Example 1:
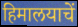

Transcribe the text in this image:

हिमालयाचें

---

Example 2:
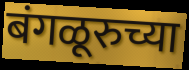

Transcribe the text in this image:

बंगळूरुच्या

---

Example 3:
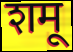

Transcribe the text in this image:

शमू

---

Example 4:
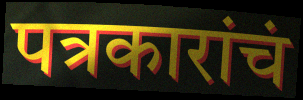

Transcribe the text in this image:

पत्रकारांचं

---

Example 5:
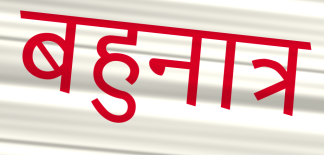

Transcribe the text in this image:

बहुनात्र